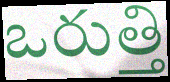
ఒరుత్తి